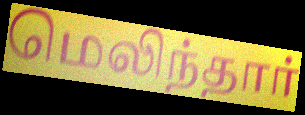
மெலிந்தார்